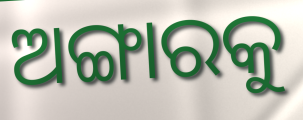
ଅଙ୍ଗାରକୁ